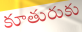
కూతురుకు